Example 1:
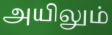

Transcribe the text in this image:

அயிலும்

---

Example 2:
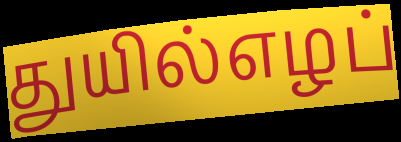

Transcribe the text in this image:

துயில்எழப்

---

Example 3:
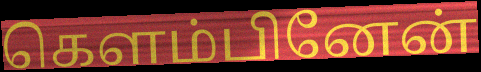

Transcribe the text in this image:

கெளம்பினேன்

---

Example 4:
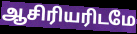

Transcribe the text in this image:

ஆசிரியரிடமே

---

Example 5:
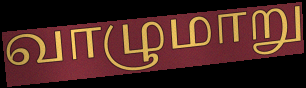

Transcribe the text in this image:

வாழுமாறு